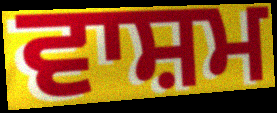
ਵਾਸ਼ਮ